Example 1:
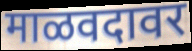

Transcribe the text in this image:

माळवदावर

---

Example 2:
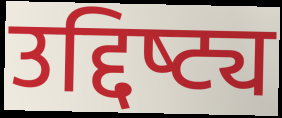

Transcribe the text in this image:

उद्दिष्ट्य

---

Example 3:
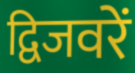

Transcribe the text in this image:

द्विजवरें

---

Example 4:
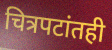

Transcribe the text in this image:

चित्रपटांतही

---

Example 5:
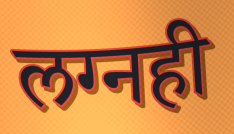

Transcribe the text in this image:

लग्नही